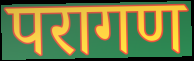
परागण